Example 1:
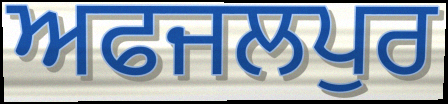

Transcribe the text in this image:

ਅਫਜਲਪੁਰ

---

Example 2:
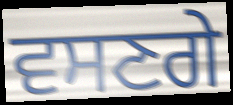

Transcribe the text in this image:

ਵਸਣਗੇ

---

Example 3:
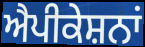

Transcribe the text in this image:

ਐਪੀਕੇਸ਼ਨਾਂ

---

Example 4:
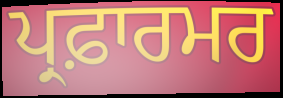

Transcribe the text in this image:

ਪ੍ਰਫ਼ਾਰਮਰ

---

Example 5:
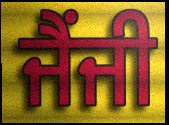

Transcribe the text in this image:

ਜੈਂਜੀ